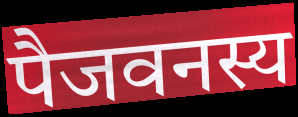
पैजवनस्य